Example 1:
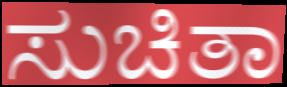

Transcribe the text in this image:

ಸುಚಿತಾ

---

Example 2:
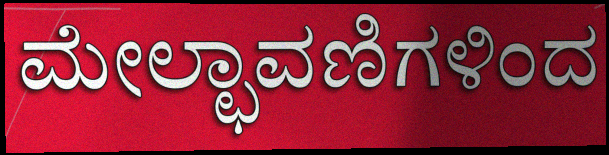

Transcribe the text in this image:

ಮೇಲ್ಛಾವಣಿಗಳಿಂದ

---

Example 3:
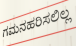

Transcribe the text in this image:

ಗಮನಹರಿಸಲಿಲ್ಲ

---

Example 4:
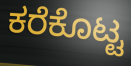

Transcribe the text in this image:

ಕರೆಕೊಟ್ಟ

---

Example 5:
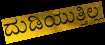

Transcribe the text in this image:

ದುಡಿಯುತ್ತಿಲ್ಲ